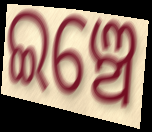
ଇଞ୍ଚେ